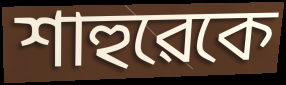
শাহুৱেকে